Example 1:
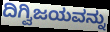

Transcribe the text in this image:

ದಿಗ್ವಿಜಯವನ್ನು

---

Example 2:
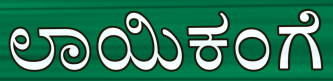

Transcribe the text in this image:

ಲಾಯಿಕಂಗೆ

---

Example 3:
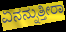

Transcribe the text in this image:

ಏನನ್ನುತ್ತೀರಾ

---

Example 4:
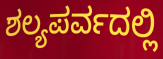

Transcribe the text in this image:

ಶಲ್ಯಪರ್ವದಲ್ಲಿ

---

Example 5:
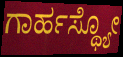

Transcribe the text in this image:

ಗಾರ್ಹಸ್ಥ್ಯೋ